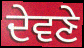
ਦੇਵਣੇ